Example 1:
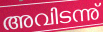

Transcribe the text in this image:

അവിടന്നു്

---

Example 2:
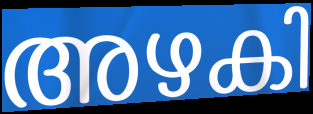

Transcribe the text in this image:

അഴകി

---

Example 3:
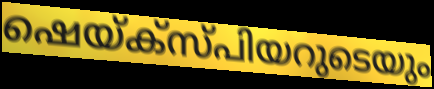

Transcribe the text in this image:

ഷെയ്ക്സ്പിയറുടെയും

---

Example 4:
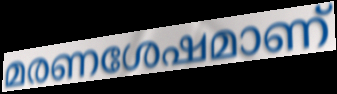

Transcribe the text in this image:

മരണശേഷമാണ്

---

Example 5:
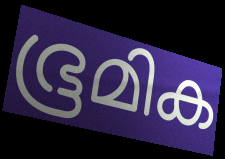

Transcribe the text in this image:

ഭൂമിക